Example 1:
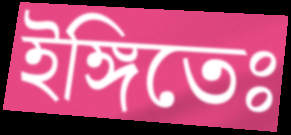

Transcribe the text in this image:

ইঙ্গিতেঃ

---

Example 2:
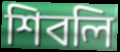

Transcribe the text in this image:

শিবলি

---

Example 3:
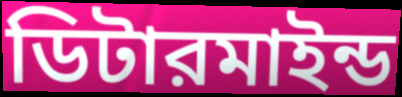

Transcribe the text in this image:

ডিটারমাইন্ড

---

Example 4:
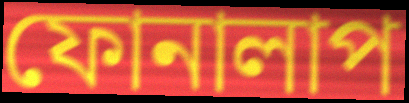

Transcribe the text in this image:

ফোনালাপ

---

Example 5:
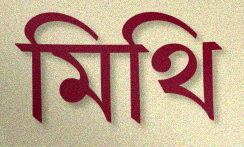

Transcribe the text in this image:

মিথি